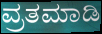
ವ್ರತಮಾಡಿ